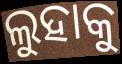
ଲୁହାକୁ